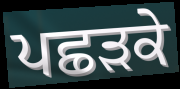
ਪਛੜਕੇ